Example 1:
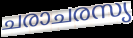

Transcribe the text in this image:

ചരാചരസ്യ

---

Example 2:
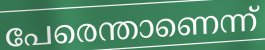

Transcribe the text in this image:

പേരെന്താണെന്ന്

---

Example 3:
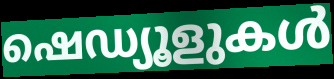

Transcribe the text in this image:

ഷെഡ്യൂളുകൾ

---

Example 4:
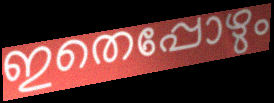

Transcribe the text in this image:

ഇതെപ്പോഴും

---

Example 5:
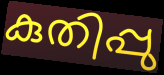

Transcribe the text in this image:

കുതിപ്പു